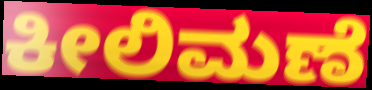
ಕೀಲಿಮಣೆ